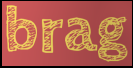
brag